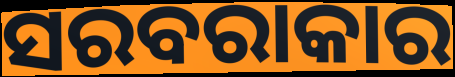
ସରବରାକାର